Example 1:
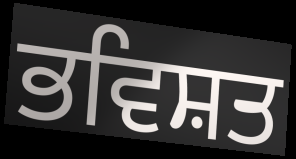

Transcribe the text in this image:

ਭਵਿਸ਼ਤ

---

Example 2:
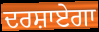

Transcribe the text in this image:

ਦਰਸ਼ਾਏਗਾ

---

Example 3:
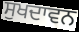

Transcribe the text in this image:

ਸੁਖਦਾਵਨ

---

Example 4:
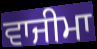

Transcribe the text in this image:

ਵਾਜੀਮਾ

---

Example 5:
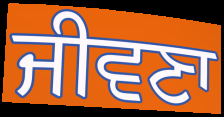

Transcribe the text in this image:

ਜੀਵਣਾ